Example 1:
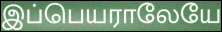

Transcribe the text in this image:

இப்பெயராலேயே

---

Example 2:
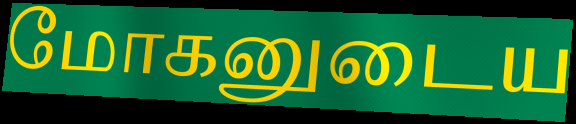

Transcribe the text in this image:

மோகனுடைய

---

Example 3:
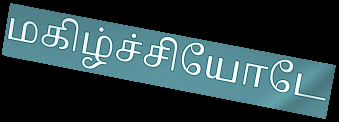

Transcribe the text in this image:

மகிழ்ச்சியோடே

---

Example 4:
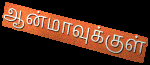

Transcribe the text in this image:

ஆன்மாவுக்குள்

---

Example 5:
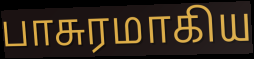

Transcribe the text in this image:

பாசுரமாகிய